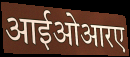
आईओआरए